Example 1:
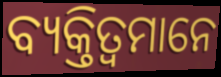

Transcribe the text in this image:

ବ୍ୟକ୍ତିତ୍ୱମାନେ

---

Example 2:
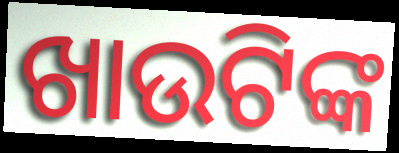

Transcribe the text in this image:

ଖାଉଟିଙ୍କ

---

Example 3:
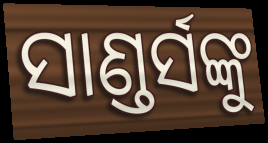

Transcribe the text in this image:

ସାଣ୍ଡର୍ସଙ୍କୁ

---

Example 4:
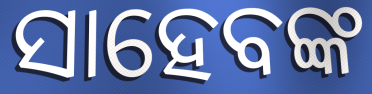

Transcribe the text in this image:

ସାହେବଙ୍କ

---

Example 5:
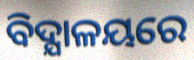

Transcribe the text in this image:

ବିଦ୍ଯାଳୟରେ